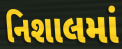
નિશાલમાં